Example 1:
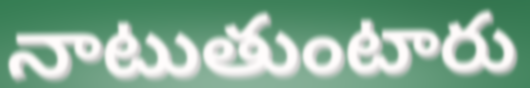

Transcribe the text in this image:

నాటుతుంటారు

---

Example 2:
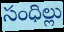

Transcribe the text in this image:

సంధిల్లు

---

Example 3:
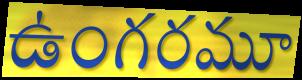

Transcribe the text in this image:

ఉంగరమూ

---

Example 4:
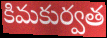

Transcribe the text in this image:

కిమకుర్వత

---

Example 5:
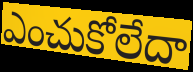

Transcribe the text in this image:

ఎంచుకోలేదా